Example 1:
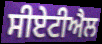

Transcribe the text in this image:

ਸੀਏਟੀਐਲ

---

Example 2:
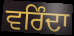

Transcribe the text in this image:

ਵਰਿੰਦਾ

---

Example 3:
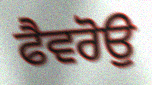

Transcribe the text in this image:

ਫੈਵਰੋਉ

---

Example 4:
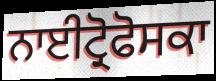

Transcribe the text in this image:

ਨਾਈਟ੍ਰੋਫੋਸਕਾ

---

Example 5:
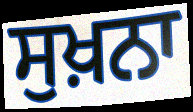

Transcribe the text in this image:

ਸੁਖ਼ਨਾ